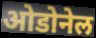
ओडोनेल